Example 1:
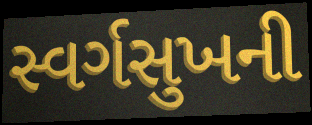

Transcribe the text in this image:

સ્વર્ગસુખની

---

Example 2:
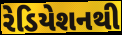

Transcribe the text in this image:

રેડિયેશનથી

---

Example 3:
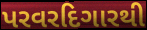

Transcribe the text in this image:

પરવરદિગારથી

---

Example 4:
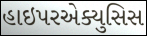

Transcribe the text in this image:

હાઇપરએક્યુસિસ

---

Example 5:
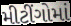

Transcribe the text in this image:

મીટીંગોમાં